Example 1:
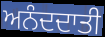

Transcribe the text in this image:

ਅਨੰਦਦਾਤੀ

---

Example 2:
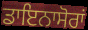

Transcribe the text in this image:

ਡਾਇਨਾਸੋਰਾਂ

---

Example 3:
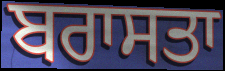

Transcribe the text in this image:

ਬਰਾਸਤਾ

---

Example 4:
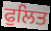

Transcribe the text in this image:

ਫੁਲਿਤ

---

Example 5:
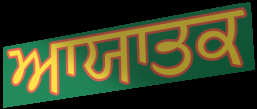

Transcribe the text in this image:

ਆਯਾਤਕ